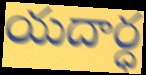
యదార్ధ